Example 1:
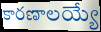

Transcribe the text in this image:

కారణాలయ్యే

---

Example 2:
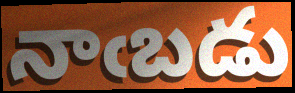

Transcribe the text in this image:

నాఁబడు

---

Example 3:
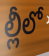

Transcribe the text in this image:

ల్లీలో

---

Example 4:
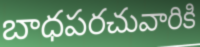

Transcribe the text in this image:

బాధపరచువారికి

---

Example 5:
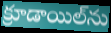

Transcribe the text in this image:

క్రూడాయిల్‌ను